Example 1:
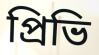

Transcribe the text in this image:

প্রিভি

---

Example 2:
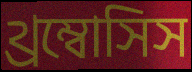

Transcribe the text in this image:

থ্রম্বোসিস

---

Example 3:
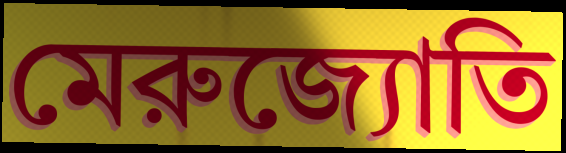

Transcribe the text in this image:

মেরুজ্যোতি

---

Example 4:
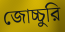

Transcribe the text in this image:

জোচ্চুরি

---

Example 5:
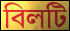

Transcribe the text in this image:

বিলটি